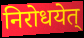
निरोधयेत्